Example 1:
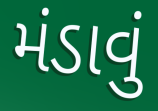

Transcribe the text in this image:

મંડાવું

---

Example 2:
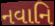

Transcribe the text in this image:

નવાનિ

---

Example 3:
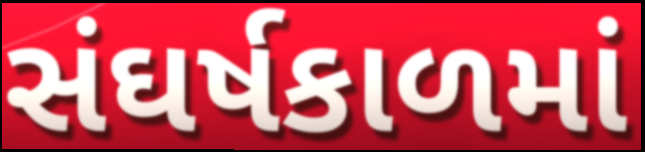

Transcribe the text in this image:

સંઘર્ષકાળમાં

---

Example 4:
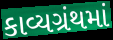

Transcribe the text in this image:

કાવ્યગ્રંથમાં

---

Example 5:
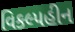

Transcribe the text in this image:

વિકલ્પહીન